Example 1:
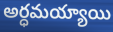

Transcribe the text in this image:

అర్ధమయ్యాయి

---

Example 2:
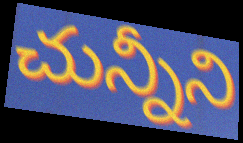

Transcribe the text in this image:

చున్నీని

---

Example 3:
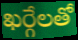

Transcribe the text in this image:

ఖర్గేలతో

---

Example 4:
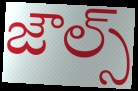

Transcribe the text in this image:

జౌల్స్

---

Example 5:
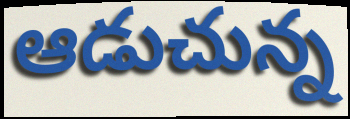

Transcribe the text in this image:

ఆడుచున్న